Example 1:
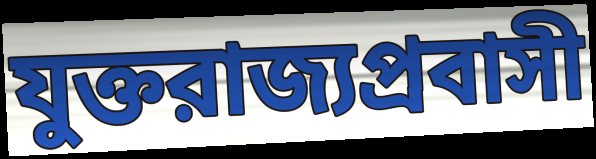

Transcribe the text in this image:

যুক্তরাজ্যপ্রবাসী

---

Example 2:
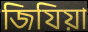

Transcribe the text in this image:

জিযিয়া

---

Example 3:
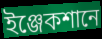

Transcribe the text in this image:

ইঞ্জেকশানে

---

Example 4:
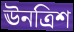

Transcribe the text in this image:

ঊনত্রিশ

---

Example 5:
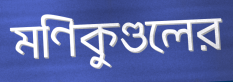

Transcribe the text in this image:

মণিকুণ্ডলের